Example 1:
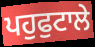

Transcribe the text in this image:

ਪਹੁਫੁਟਾਲੇ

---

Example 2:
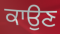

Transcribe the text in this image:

ਕਾਉਣ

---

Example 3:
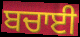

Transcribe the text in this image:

ਬਚਾਈ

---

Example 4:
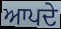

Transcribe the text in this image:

ਆਪਦੇ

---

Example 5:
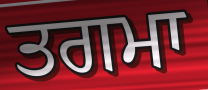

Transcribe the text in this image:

ਤਗਮਾ